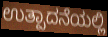
ಉತ್ಪಾದನೆಯಲ್ಲಿ